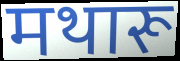
मथारू